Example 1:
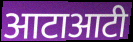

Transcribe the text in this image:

आटाआटी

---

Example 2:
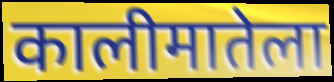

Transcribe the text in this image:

कालीमातेला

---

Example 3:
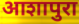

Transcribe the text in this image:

आशापुरा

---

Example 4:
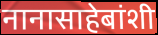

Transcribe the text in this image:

नानासाहेबांशी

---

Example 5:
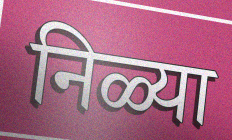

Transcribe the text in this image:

निळ्या